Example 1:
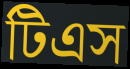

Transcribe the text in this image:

টিএস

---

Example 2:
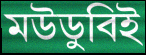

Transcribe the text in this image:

মউডুবিই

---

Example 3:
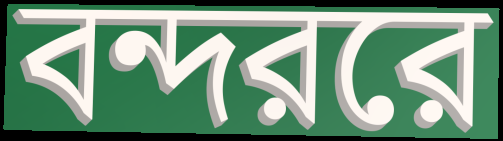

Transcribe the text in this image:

বন্দররে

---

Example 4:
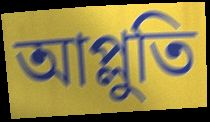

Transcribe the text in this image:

আপ্লুতি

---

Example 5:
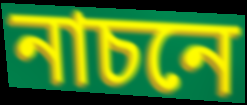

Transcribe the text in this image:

নাচনে